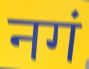
नगं